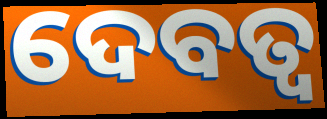
ଦେବତ୍ୱ